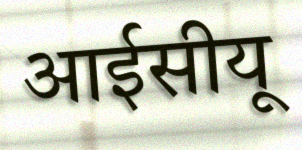
आईसीयू